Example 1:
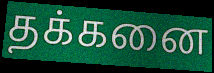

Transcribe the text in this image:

தக்கனை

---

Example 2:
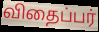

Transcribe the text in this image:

விதைப்பர்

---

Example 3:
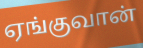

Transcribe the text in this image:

ஏங்குவான்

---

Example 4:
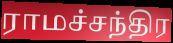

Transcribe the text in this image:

ராமச்சந்திர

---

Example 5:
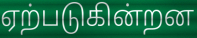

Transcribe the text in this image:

ஏற்படுகின்றன